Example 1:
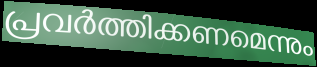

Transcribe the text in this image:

പ്രവർത്തിക്കണമെന്നും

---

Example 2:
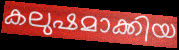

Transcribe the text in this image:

കലുഷമാക്കിയ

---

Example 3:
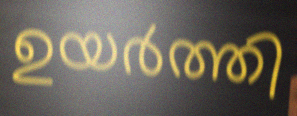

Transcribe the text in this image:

ഉയർത്തി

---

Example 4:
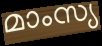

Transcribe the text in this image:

മാംസ്യ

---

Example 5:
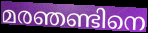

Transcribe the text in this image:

മരഞണ്ടിനെ